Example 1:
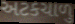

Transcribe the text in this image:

અટકચાળુ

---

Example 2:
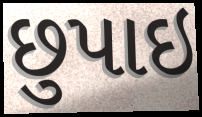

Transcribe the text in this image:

છુપાઇ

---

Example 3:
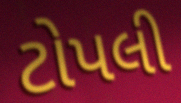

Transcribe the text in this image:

ટોપલી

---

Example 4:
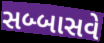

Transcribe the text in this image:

સબ્બાસવે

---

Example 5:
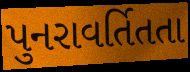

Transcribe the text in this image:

પુનરાવર્તિતતા